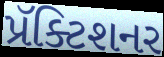
પ્રૅક્ટિશનર